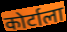
कोर्टाला